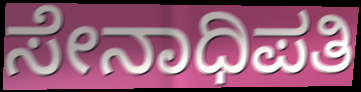
ಸೇನಾಧಿಪತಿ